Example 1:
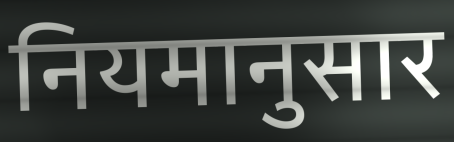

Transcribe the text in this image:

नियमानुसार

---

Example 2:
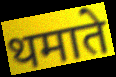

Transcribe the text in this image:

थमाते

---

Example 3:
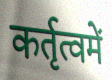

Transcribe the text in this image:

कर्तृत्वमें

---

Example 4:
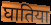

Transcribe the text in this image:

घातिया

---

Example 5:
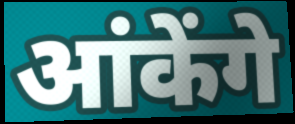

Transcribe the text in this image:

आंकेंगे